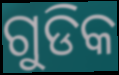
ଗୁଡିକ